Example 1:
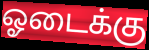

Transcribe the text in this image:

ஓடைக்கு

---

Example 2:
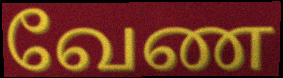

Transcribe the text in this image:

வேண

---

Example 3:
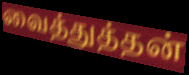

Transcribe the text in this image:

வைத்துத்தன்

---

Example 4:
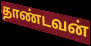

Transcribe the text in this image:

தாண்டவன்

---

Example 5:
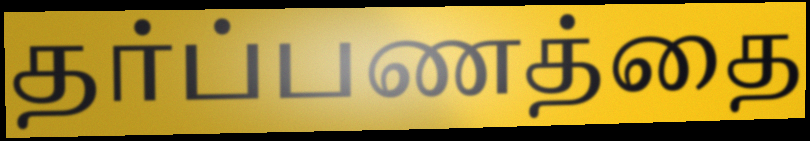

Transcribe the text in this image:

தர்ப்பணத்தை